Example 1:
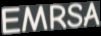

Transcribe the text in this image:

EMRSA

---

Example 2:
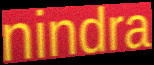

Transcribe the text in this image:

nindra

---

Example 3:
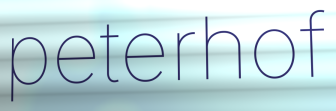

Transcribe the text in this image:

peterhof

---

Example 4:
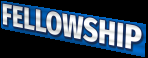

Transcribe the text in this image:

FELLOWSHIP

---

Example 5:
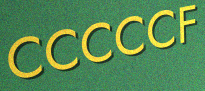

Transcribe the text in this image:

CCCCCF